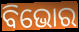
ବିଭୋର